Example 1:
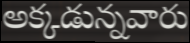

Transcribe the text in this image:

అక్కడున్నవారు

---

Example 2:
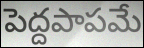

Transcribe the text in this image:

పెద్దపాపమే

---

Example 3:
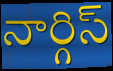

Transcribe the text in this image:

నార్గిస్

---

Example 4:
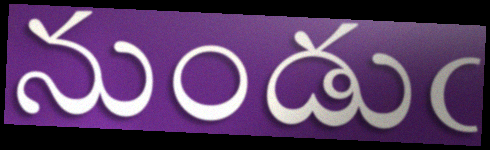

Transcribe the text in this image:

నుండుఁ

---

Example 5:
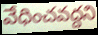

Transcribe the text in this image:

వేధించవద్దని